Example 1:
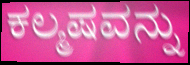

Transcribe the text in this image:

ಕಲ್ಮಷವನ್ನು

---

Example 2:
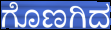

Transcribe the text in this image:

ಗೊಣಗಿದ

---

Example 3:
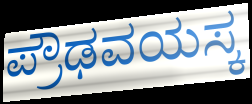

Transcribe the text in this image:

ಪ್ರೌಢವಯಸ್ಕ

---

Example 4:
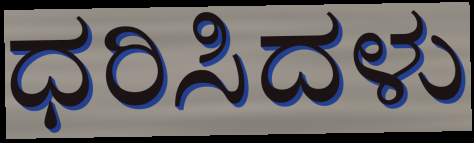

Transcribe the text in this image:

ಧರಿಸಿದಳು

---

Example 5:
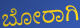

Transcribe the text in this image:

ಬೋರಾಗಿ